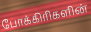
போக்கிரிகளின்